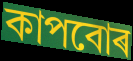
কাপবোৰ